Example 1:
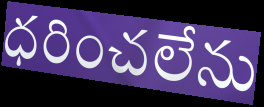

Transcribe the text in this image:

ధరించలేను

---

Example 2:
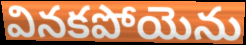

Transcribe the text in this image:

వినకపోయెను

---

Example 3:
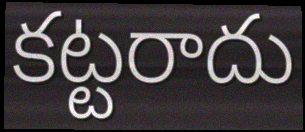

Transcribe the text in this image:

కట్టరాదు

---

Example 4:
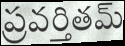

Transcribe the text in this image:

ప్రవర్తితమ్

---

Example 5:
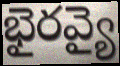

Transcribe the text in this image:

భైరవ్యై